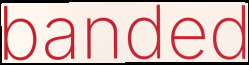
banded